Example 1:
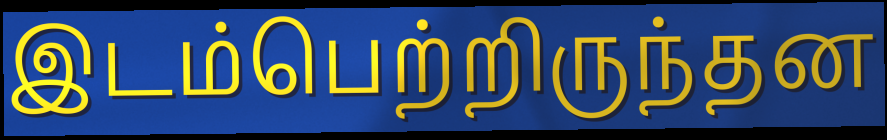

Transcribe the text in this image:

இடம்பெற்றிருந்தன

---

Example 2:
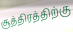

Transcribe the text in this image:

சூத்திரத்திற்கு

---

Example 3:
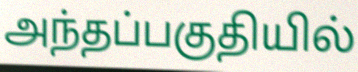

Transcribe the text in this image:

அந்தப்பகுதியில்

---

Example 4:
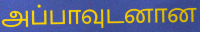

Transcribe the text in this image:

அப்பாவுடனான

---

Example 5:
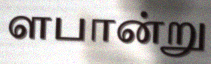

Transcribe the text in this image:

ளபான்று